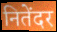
नितेंदर